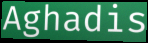
Aghadis